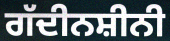
ਗੱਦੀਨਸ਼ੀਨੀ